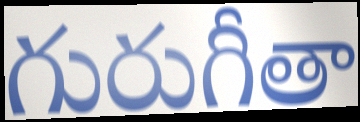
గురుగీతా